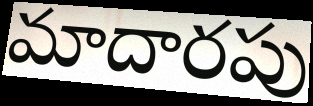
మాదారపు